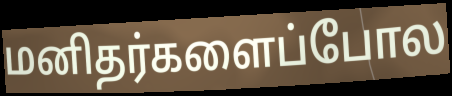
மனிதர்களைப்போல